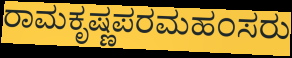
ರಾಮಕೃಷ್ಣಪರಮಹಂಸರು